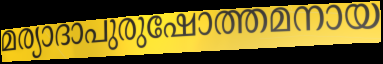
മര്യാദാപുരുഷോത്തമനായ